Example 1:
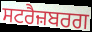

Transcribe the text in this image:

ਸਟਰੈਜ਼ਬਰਗ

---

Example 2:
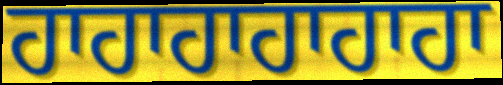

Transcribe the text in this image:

ਹਾਹਾਹਾਹਾਹਾਹਾ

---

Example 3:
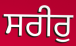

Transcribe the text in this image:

ਸਰੀਰੁ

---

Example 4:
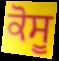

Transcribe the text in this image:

ਕੋਸੂ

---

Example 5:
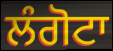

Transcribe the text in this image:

ਲੰਗੋਟਾ